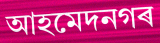
আহমেদনগৰ